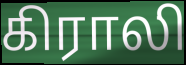
கிராலி